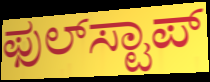
ಫುಲ್‍ಸ್ಟಾಪ್